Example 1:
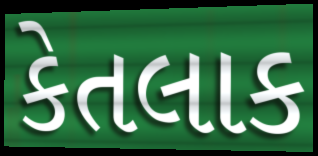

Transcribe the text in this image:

કેતલાક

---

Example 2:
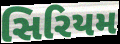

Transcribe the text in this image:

સિરિયમ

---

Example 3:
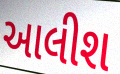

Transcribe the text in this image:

આલીશ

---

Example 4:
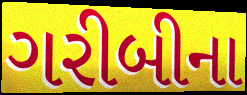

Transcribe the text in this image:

ગરીબીના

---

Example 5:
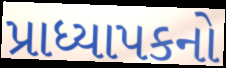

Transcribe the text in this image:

પ્રાધ્યાપકનો